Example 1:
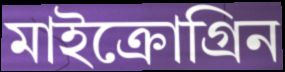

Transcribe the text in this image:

মাইক্রোগ্রিন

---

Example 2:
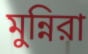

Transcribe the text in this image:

মুন্নিরা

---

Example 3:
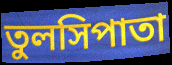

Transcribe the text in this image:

তুলসিপাতা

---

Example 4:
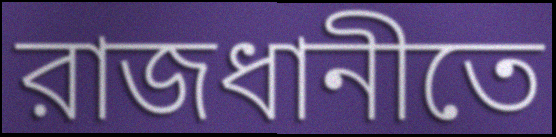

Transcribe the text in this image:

রাজধানীতে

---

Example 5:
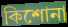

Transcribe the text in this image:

কিশোনা